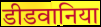
डीडवानिया